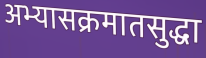
अभ्यासक्रमातसुद्धा